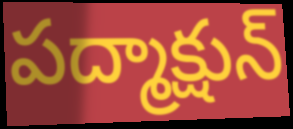
పద్మాక్షున్